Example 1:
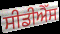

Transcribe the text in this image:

ਸੀਡੀਐੱਸ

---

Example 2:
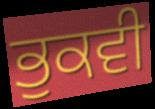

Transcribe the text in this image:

ਭੁਕਵੀ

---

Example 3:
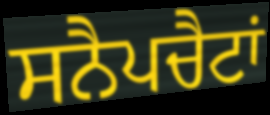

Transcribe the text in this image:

ਸਨੈਪਚੈਟਾਂ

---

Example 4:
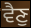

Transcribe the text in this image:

ਵੈਣੁ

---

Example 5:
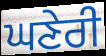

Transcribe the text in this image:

ਘਣੇਰੀ